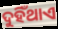
ଦୁହିଁଥାଏ